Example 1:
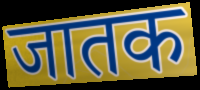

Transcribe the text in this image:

जातक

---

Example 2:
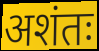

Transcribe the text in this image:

अशंतः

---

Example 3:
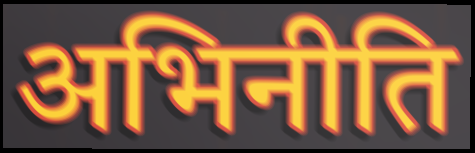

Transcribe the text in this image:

अभिनीति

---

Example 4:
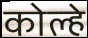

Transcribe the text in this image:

कोल्हे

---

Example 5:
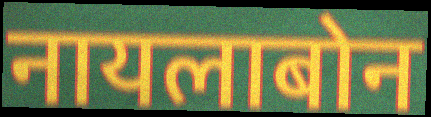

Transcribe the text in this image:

नायलाबोन